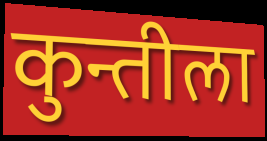
कुन्तीला